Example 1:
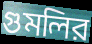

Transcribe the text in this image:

গুমলির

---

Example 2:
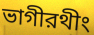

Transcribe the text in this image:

ভাগীরথীং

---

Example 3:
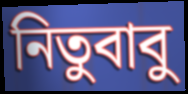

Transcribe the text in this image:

নিতুবাবু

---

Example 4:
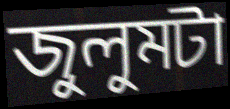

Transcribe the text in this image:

জুলুমটা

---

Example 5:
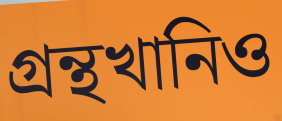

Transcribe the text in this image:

গ্রন্থখানিও